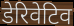
डेरिवेटिव